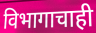
विभागाचाही